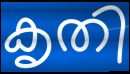
കൃതി